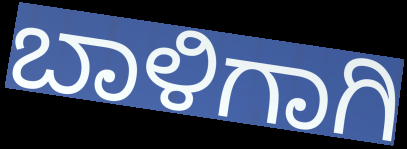
ಬಾಳಿಗಾಗಿ